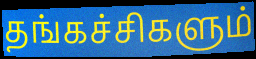
தங்கச்சிகளும்